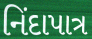
નિંદાપાત્ર